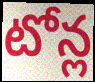
టోన్ల